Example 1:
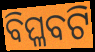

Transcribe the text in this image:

ବିପ୍ଳବଟି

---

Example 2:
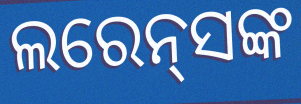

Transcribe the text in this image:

ଲରେନ୍‌ସଙ୍କ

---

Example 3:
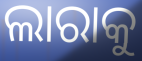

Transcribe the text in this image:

ଲାରାକୁ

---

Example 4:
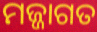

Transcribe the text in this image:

ମଜ୍ଜାଗତ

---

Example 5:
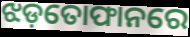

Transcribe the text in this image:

ଝଡ଼ତୋଫାନରେ